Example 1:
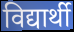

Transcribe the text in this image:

विद्यार्थी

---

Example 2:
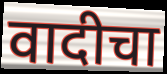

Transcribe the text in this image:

वादीचा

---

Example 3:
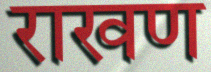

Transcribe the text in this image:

राखण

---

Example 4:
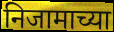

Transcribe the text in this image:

निजामाच्या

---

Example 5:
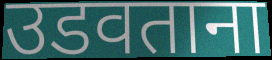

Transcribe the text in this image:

उडवताना